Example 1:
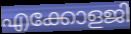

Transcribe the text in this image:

എക്കോളജി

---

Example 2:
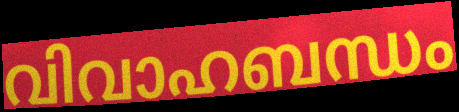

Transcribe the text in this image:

വിവാഹബന്ധം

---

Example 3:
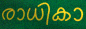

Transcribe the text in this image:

രാധികാ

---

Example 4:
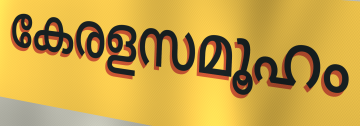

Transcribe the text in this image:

കേരളസമൂഹം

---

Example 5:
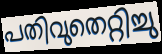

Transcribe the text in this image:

പതിവുതെറ്റിച്ചു